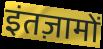
इंतज़ामों